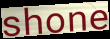
shone